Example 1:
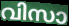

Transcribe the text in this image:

വിസാ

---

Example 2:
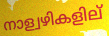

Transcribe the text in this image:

നാള്വഴികളില്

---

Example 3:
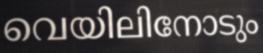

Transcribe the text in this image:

വെയിലിനോടും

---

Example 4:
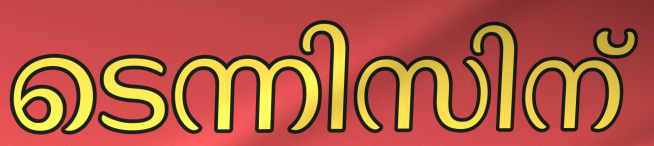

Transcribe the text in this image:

ടെന്നിസിന്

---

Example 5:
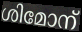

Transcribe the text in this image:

ശിമോന്